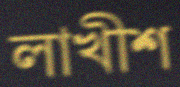
লাখীশ